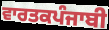
ਵਾਰਤਕਪੰਜਾਬੀ